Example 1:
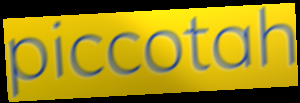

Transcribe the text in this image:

piccotah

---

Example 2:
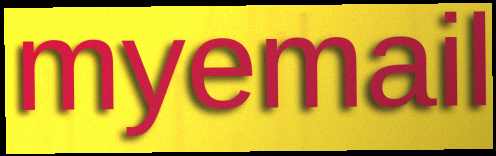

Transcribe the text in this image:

myemail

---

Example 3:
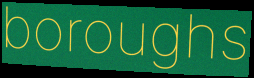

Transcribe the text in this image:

boroughs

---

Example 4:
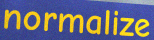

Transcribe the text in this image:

normalize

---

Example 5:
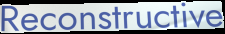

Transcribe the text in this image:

Reconstructive